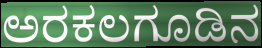
ಅರಕಲಗೂಡಿನ